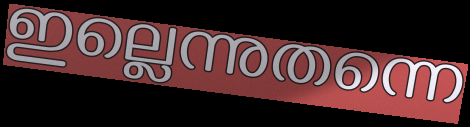
ഇല്ലെന്നുതന്നെ